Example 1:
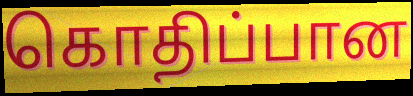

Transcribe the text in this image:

கொதிப்பான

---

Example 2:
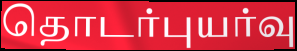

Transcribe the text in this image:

தொடர்புயர்வு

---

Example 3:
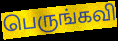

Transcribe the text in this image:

பெருங்கவி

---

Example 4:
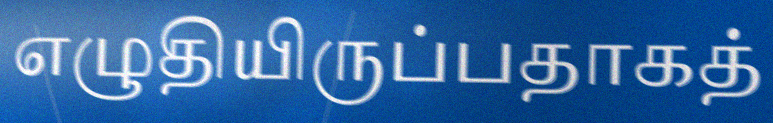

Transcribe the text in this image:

எழுதியிருப்பதாகத்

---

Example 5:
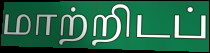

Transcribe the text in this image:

மாற்றிடப்